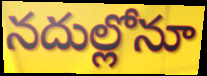
నదుల్లోనూ